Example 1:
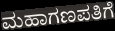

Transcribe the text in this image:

ಮಹಾಗಣಪತಿಗೆ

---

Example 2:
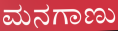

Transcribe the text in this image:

ಮನಗಾಣು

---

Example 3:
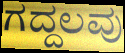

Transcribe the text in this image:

ಗದ್ದಲವು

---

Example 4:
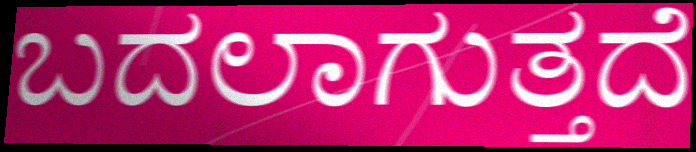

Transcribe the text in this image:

ಬದಲಾಗುತ್ತದೆ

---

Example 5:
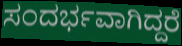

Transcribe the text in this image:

ಸಂದರ್ಭವಾಗಿದ್ದರೆ